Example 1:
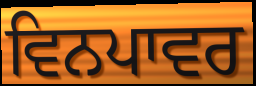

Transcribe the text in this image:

ਵਿਨਪਾਵਰ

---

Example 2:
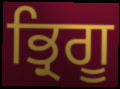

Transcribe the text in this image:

ਭ੍ਰਿਗੂ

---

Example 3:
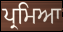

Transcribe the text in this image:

ਪ੍ਰਮਿਆ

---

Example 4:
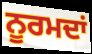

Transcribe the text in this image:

ਨੂਰਮਦਾਂ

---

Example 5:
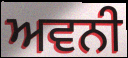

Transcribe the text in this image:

ਅਵਨੀ